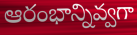
ఆరంభాన్నివ్వగా